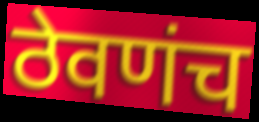
ठेवणंच